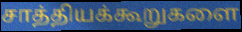
சாத்தியக்கூறுகளை